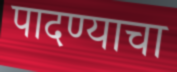
पादण्याचा